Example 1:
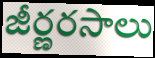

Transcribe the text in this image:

జీర్ణరసాలు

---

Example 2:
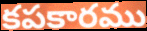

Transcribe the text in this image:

కపకారము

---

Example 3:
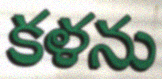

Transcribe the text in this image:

కళను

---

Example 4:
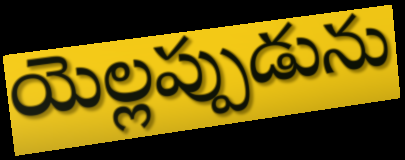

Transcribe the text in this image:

యెల్లప్పుడును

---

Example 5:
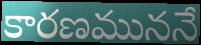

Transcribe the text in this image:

కారణముననే